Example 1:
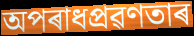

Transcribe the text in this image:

অপৰাধপ্ৰৱণতাৰ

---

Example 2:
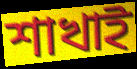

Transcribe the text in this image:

শাখাই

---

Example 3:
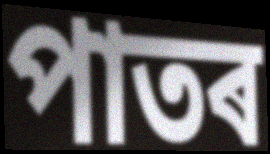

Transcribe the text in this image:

পাতৰ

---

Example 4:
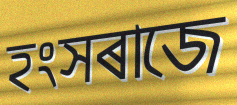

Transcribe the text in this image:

হংসৰাজে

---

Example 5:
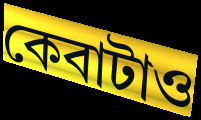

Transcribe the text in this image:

কেবাটাও